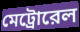
মেট্রোরেল